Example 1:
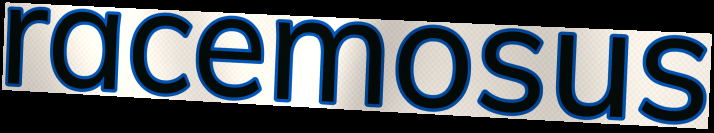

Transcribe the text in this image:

racemosus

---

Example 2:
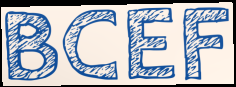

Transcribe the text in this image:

BCEF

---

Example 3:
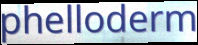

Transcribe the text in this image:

phelloderm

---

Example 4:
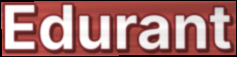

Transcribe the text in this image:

Edurant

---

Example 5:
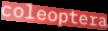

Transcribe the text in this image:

coleoptera